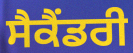
ਸੈਕੈਂਡਰੀ